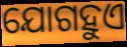
ଯୋଗହୁଏ